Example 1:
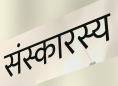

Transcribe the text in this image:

संस्कारस्य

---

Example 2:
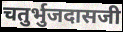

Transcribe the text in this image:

चतुर्भुजदासजी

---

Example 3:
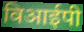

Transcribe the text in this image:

विआईपी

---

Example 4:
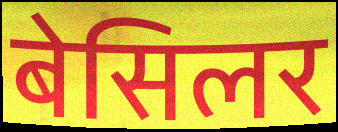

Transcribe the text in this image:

बेसिलर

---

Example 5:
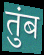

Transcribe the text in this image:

तुंब